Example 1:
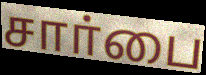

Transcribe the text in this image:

சார்பை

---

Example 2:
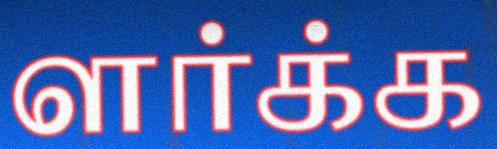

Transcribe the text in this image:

ளர்க்க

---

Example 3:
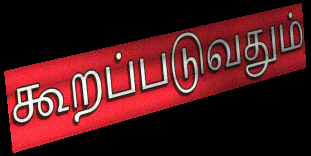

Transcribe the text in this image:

கூறப்படுவதும்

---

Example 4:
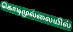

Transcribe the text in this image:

கொடிமுல்லையில்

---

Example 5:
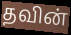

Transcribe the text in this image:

தவின்